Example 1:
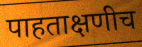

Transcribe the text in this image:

पाहताक्षणीच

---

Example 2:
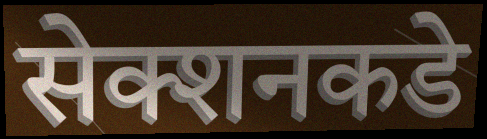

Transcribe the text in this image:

सेक्शनकडे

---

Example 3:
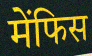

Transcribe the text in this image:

मेंफिस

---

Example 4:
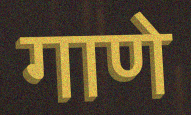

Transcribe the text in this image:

गाणे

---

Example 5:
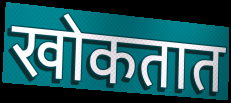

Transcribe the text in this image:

खोकतात